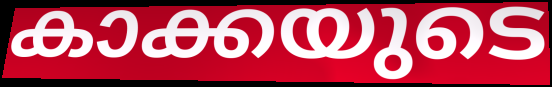
കാക്കയുടെ